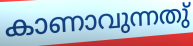
കാണാവുന്നതു്